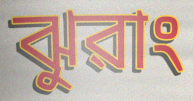
ঝুৱাং